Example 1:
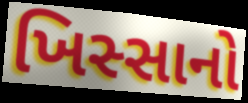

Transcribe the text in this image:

ખિસ્સાનો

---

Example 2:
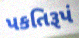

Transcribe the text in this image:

પકતિરૂપં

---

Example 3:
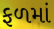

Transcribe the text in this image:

ફળમાં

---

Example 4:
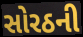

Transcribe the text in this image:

સોરઠની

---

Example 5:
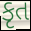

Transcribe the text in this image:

કૃત